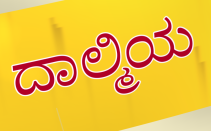
ದಾಲ್ಮಿಯ